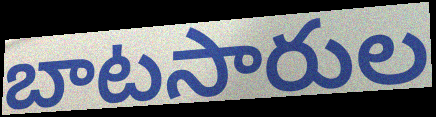
బాటసారుల